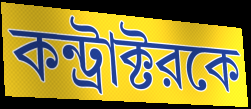
কন্ট্রাক্টরকে